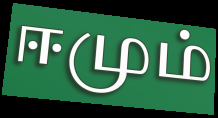
ஈமும்